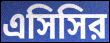
এসিসির